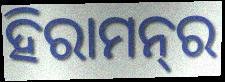
ହିରାମନ୍‍ର